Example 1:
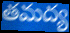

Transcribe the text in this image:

తమద్య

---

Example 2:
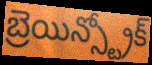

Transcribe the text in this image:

బ్రెయిన్స్ట్రోక్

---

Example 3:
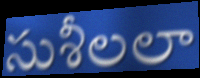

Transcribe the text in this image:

సుశీలలా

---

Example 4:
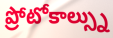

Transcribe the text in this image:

ప్రోటోకాల్స్ను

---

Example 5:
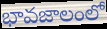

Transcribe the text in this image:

భావజాలంలో